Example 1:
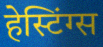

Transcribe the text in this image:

हेस्टिंग्स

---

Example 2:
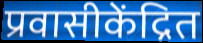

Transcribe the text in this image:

प्रवासीकेंद्रित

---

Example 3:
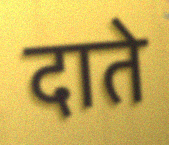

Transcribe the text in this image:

दाते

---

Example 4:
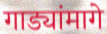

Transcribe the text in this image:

गाड्यांमागे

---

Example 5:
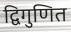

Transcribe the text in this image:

द्विगुणित